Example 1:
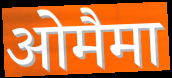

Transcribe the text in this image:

ओमैमा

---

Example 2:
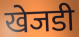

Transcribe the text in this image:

खेजडी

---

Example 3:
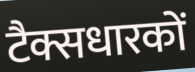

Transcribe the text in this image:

टैक्सधारकों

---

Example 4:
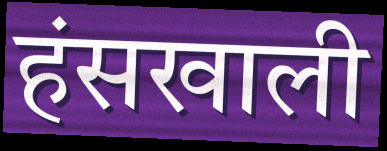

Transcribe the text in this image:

हंसखाली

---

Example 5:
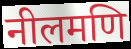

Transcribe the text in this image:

नीलमणि